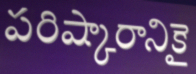
పరిష్కారానికై